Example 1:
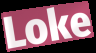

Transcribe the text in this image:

Loke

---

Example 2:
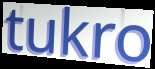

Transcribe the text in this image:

tukro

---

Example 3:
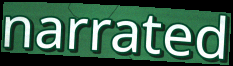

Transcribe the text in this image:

narrated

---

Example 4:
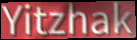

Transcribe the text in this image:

Yitzhak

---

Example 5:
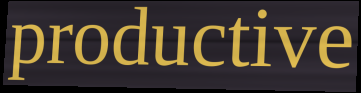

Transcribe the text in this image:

productive